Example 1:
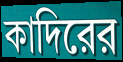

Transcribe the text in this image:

কাদিরের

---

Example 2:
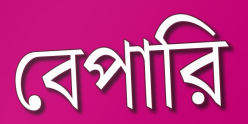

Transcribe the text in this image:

বেপারি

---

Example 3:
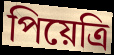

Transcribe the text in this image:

পিয়েত্রি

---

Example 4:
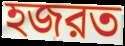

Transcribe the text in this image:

হজরত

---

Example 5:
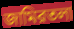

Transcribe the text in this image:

জামিরতলা